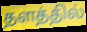
தளத்தில்